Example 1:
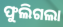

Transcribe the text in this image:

ଫୁଲିଗଲା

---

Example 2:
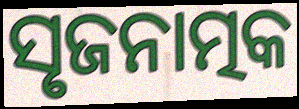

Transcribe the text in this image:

ସୃଜନାତ୍ମକ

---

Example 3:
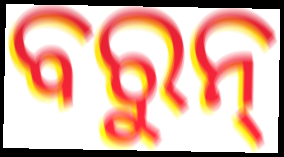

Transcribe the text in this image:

ବରୁନ୍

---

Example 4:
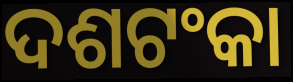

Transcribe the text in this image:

ଦଶଟଂକା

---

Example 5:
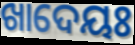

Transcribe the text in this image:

ଖାଦେୟଃ